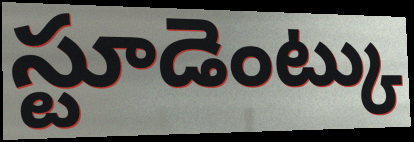
స్టూడెంట్కు